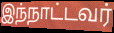
இந்நாட்டவர்